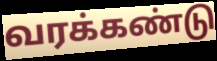
வரக்கண்டு